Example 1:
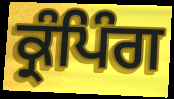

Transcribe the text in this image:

ਕ੍ਰੰਪਿੰਗ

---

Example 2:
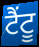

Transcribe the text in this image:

ਟੈਂਟੂ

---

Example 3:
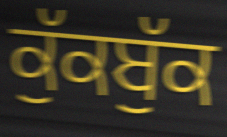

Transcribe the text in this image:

ਕੁੱਕਬੁੱਕ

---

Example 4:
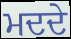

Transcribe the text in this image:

ਮਦਦੇ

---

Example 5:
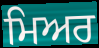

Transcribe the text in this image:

ਮਿਅਰ